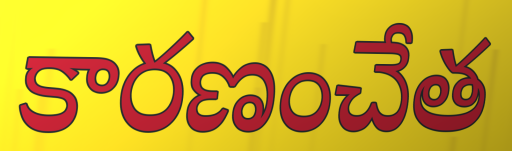
కారణంచేత